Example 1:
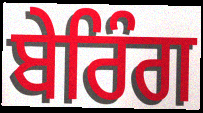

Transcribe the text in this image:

ਬੇਰਿੰਗ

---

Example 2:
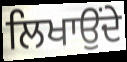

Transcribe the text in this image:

ਲਿਖਾਉਂਦੇ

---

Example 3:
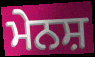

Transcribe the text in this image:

ਮੇਨਸ਼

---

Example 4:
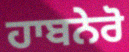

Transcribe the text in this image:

ਹਾਬਨੇਰੋ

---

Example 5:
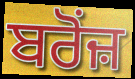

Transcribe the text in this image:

ਬਰੋਂਜ਼